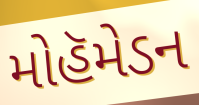
મોહૅમેડન